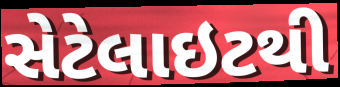
સેટેલાઇટથી